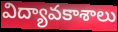
విద్యావకాశాలు